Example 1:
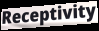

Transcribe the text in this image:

Receptivity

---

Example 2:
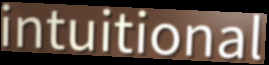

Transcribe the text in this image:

intuitional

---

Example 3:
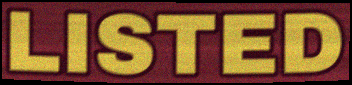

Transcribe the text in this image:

LISTED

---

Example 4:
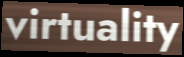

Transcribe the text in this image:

virtuality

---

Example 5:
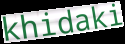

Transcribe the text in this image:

khidaki